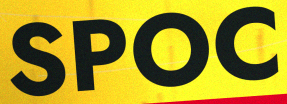
SPOC